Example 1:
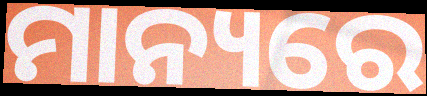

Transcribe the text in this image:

ମାନ୍ୟରେ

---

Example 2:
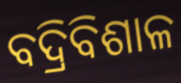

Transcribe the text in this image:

ବଦ୍ରିବିଶାଳ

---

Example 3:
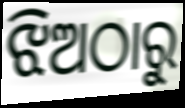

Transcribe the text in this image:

ଝିଅଠାରୁ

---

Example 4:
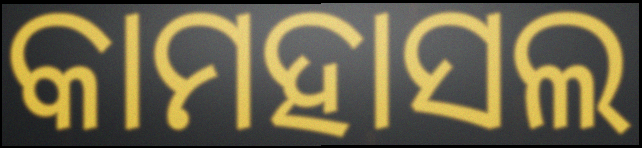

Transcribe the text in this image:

କାମହାସଲ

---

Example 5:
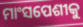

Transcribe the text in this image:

ମାଂସପେଶୀକୁ